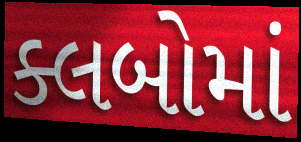
ક્લબોમાં